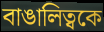
বাঙালিত্বকে